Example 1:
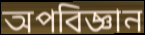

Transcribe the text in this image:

অপবিজ্ঞান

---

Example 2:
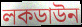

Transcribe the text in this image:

লকডাউন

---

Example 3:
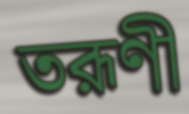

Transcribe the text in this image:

তরূণী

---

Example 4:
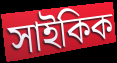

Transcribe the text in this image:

সাইকিক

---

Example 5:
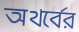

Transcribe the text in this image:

অথর্বের